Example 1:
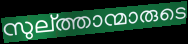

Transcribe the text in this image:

സുല്ത്താന്മാരുടെ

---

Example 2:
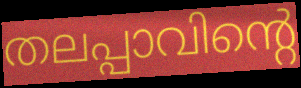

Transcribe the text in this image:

തലപ്പാവിന്റെ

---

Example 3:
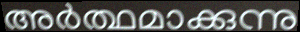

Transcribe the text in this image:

അർത്ഥമാക്കുന്നു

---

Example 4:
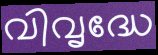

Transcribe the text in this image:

വിവൃദ്ധേ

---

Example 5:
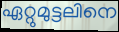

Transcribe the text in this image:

ഏറ്റുമുട്ടലിനെ